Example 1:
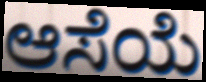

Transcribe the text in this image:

ಆಸೆಯೆ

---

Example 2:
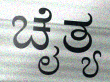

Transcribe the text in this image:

ಚೈತ್ಯ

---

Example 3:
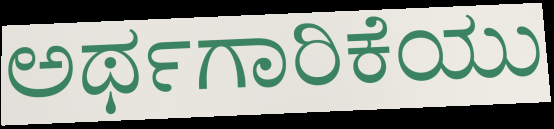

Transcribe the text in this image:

ಅರ್ಥಗಾರಿಕೆಯು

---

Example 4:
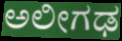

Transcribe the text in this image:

ಅಲೀಗಢ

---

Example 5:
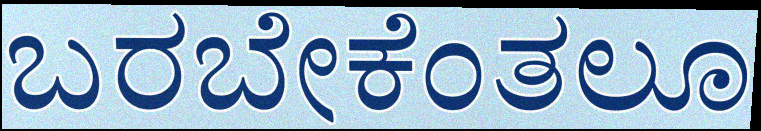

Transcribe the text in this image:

ಬರಬೇಕೆಂತಲೂ